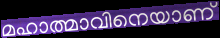
മഹാത്മാവിനെയാണ്